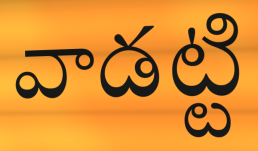
వాడట్టి